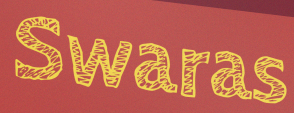
Swaras